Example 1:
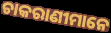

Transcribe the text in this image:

ଚାକରାଣୀମାନେ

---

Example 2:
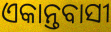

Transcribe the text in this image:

ଏକାନ୍ତବାସୀ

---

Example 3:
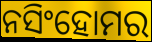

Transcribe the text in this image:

ନସିଂହୋମର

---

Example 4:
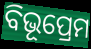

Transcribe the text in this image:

ବିଭୂପ୍ରେମ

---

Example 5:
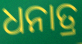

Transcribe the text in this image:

ଧନାତ୍ର